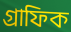
গ্ৰাফিক